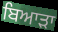
ਬਿਆੜਾ